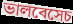
ভালবেসেচ